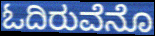
ಓದಿರುವೆನೊ